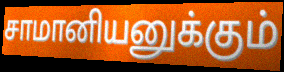
சாமானியனுக்கும்